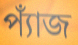
প্যাঁজ